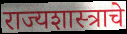
राज्यशास्त्राचे